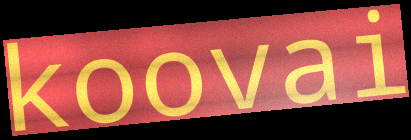
koovai